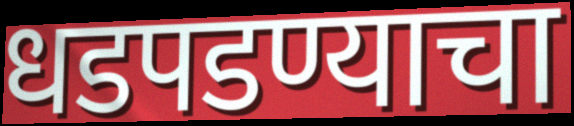
धडपडण्याचा